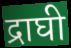
द्राघी